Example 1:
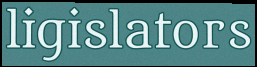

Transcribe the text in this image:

ligislators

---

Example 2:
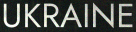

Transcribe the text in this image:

UKRAINE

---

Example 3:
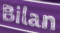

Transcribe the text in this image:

Bilan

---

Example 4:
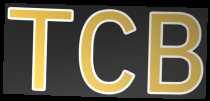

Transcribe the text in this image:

TCB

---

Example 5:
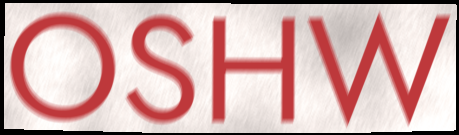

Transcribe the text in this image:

OSHW